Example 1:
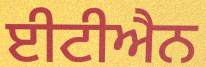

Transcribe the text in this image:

ਈਟੀਐਨ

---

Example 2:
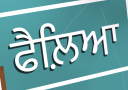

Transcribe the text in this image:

ਫੈਲ਼ਿਆ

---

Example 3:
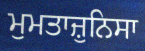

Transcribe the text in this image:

ਮੁਮਤਾਜ਼ੁਨਿਸਾ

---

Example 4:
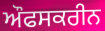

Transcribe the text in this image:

ਔਫਸਕਰੀਨ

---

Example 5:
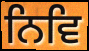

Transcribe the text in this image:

ਨਿਵਿ